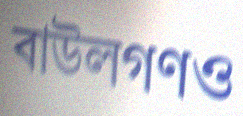
বাউলগণও